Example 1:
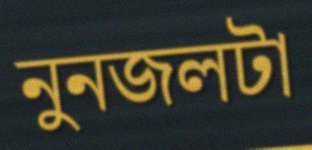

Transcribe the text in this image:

নুনজলটা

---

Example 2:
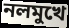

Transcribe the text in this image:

নলমুখে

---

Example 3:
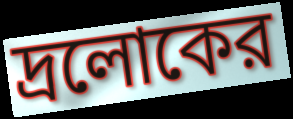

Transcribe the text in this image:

দ্রলোকের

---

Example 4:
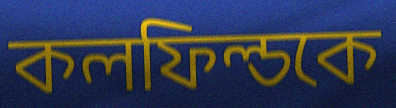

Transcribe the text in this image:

কলফিল্ডকে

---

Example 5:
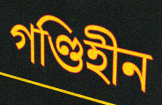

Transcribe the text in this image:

গণ্ডিহীন